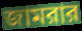
জামরার